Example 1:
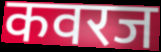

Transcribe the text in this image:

कवरज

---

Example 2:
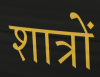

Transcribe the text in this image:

शात्रों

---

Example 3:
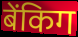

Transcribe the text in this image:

बेंकिग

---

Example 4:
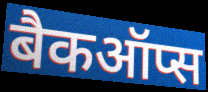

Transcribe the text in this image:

बैकऑप्स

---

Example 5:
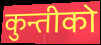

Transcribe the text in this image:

कुन्तीको